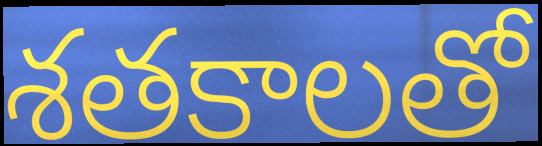
శతకాలతో